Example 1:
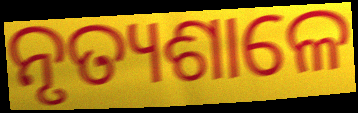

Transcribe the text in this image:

ନୃତ୍ୟଶାଳେ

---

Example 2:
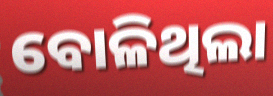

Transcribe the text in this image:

ବୋଳିଥିଲା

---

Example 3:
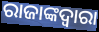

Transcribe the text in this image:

ରାଜାଙ୍କଦ୍ଵାରା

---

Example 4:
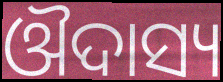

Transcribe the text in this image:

ଔଦାସ୍ୟ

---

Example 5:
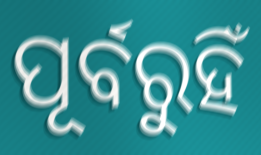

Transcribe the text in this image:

ପୂର୍ବରୁହିଁ